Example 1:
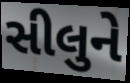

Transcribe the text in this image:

સીલુને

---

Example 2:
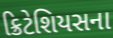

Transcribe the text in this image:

ક્રિટેશિયસના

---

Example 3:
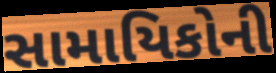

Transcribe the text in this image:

સામાયિકોની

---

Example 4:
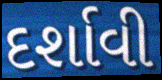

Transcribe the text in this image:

દર્શાવી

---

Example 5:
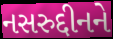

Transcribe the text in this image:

નસરુદ્દીનને